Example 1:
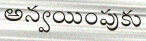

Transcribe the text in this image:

అన్వయింపుకు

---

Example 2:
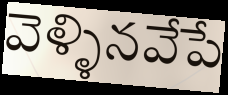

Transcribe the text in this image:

వెళ్ళినవేపే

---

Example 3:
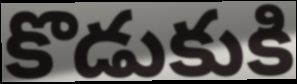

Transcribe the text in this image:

కొడుకుకి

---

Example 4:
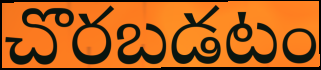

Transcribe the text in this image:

చొరబడటం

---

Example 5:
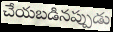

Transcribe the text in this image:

చేయబడినప్పుడు